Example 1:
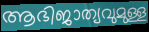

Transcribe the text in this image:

ആഭിജാത്യവുമുള്ള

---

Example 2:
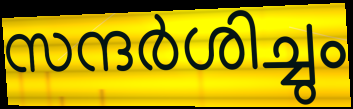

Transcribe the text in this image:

സന്ദർശിച്ചും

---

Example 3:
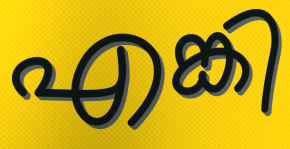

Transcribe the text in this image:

എങ്കി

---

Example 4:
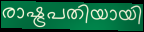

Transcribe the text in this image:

രാഷ്ട്രപതിയായി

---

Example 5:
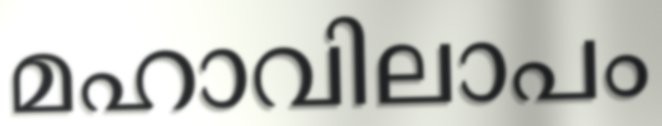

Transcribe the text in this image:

മഹാവിലാപം